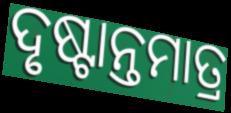
ଦୃଷ୍ଟାନ୍ତମାତ୍ର